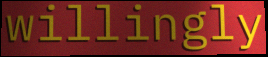
willingly